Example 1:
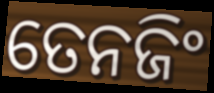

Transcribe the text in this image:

ତେନଜିଂ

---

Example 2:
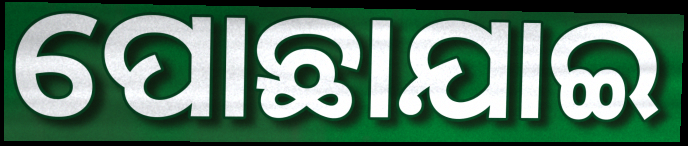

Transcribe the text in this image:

ପୋଛାଯାଇ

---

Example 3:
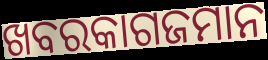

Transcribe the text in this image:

ଖବରକାଗଜମାନ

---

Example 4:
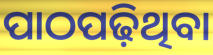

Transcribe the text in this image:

ପାଠପଢ଼ିଥିବା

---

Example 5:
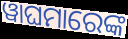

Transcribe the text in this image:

ୱାଘମାରେଙ୍କ